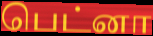
பெட்னா